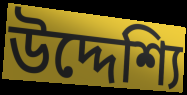
উদ্দেশ্যি